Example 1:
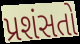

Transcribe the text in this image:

પ્રશંસતો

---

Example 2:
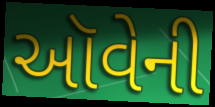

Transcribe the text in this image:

ઑવેની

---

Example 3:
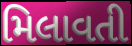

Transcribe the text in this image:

મિલાવતી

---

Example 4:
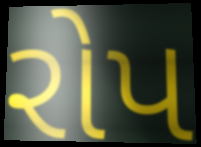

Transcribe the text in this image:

રોપ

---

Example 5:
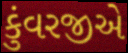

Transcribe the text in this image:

કુંવરજીએ